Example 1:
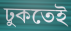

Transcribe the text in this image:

ঢুকতেই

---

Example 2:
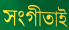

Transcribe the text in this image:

সংগীতাই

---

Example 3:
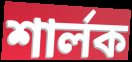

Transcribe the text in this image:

শার্লক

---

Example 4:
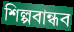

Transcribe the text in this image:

শিল্পবান্ধব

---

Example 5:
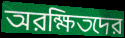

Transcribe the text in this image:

অরক্ষিতদের